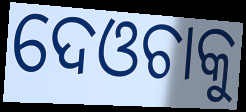
ଦେଓଚାକୁ